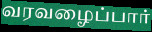
வரவழைப்பார்